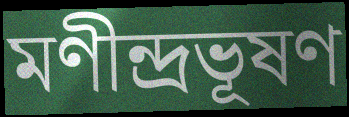
মণীন্দ্রভূষণ